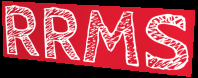
RRMS